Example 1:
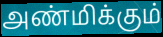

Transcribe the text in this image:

அண்மிக்கும்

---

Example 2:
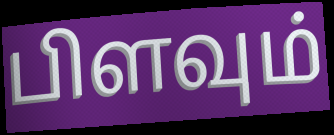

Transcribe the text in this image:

பிளவும்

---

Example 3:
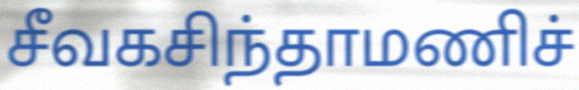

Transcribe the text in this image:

சீவகசிந்தாமணிச்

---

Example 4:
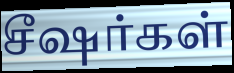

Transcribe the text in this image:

சீஷர்கள்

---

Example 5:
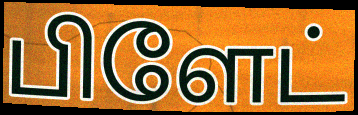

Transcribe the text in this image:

பிளேட்